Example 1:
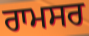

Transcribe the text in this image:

ਰਾਮਸਰ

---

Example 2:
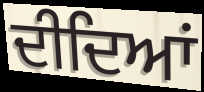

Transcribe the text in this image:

ਦੀਦਿਆਂ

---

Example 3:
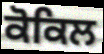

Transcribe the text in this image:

ਕੋਕਿਲ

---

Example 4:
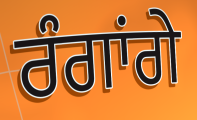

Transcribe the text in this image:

ਰੰਗਾਂਗੇ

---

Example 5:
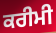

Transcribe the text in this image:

ਕਰੀਮੀ